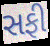
સફી